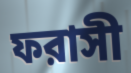
ফরাসী